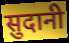
सुदानी